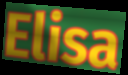
Elisa